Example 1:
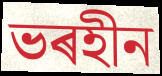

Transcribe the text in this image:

ভৰহীন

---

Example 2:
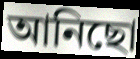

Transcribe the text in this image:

আনিছো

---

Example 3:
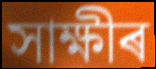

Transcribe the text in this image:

সাক্ষীৰ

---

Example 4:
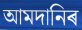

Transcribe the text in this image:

আমদানিৰ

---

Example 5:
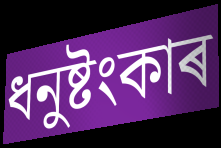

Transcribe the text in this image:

ধনুষ্টংকাৰ